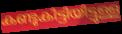
കണ്ടുകിട്ടിയിട്ടുള്ള